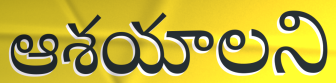
ఆశయాలని